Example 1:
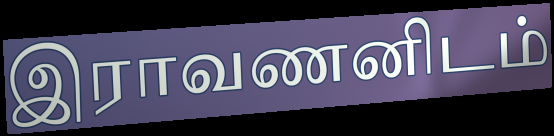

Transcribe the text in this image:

இராவணனிடம்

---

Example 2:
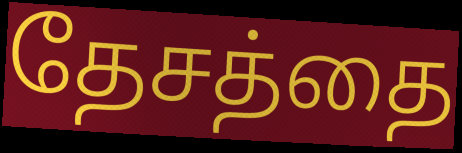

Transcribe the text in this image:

தேசத்தை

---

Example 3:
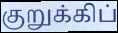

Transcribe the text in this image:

குறுக்கிப்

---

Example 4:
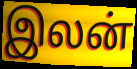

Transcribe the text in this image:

இலன்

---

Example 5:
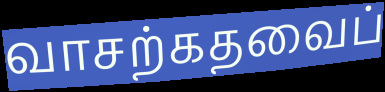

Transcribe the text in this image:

வாசற்கதவைப்